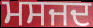
ਮਸਜਦ